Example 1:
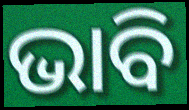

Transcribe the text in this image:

ଭାବି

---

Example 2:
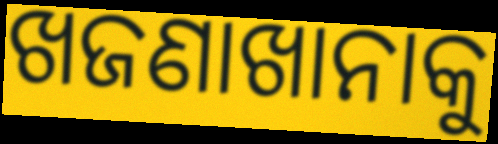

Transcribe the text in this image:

ଖଜଣାଖାନାକୁ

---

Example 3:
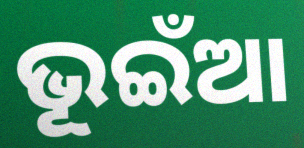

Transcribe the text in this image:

ଭୂଇଁଆ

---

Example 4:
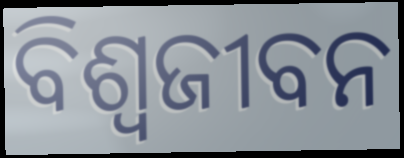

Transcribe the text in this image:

ବିଶ୍ଵଜୀବନ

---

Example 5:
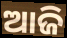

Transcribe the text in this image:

ଆଜି